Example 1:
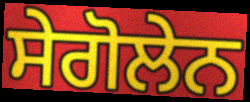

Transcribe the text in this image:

ਸੇਗੋਲੇਨ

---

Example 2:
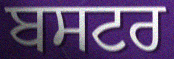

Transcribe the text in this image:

ਬਸਟਰ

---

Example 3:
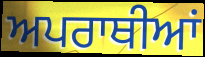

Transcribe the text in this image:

ਅਪਰਾਥੀਆਂ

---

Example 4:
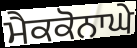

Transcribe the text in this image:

ਮੈਕਕੋਨਾਘੇ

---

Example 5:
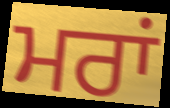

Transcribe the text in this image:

ਮਰਾਂ